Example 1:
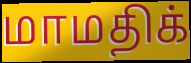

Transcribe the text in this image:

மாமதிக்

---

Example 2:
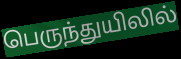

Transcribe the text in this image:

பெருந்துயிலில்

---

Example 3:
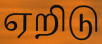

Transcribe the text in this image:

ஏறிடு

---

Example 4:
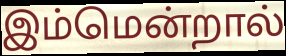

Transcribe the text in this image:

இம்மென்றால்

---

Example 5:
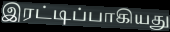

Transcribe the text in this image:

இரட்டிப்பாகியது